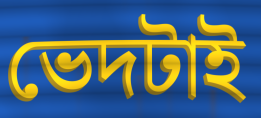
ভেদটাই